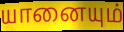
யானையும்